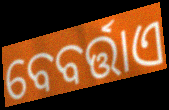
ବେବର୍ତ୍ତାଏ